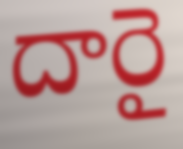
దారై